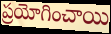
ప్రయోగించాయి